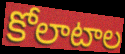
కోలాటాల